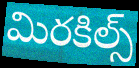
మిరకిల్స్